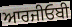
ਆਰਜੀਓਬੀ